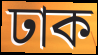
ঢাক